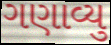
ગણાવ્યુ